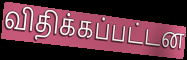
விதிக்கப்பட்டன